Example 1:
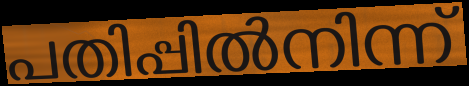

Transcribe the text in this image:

പതിപ്പിൽനിന്ന്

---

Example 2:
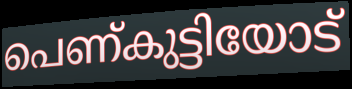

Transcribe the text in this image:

പെണ്കുട്ടിയോട്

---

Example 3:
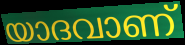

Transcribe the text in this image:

യാദവാണ്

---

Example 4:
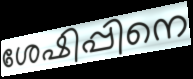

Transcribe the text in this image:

ശേഷിപ്പിനെ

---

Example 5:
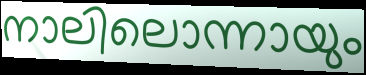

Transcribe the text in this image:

നാലിലൊന്നായും